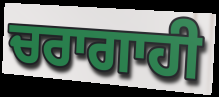
ਚਰਾਗਾਹੀ